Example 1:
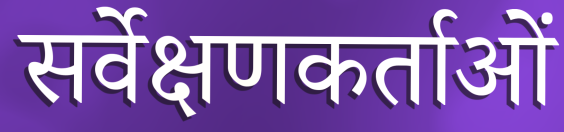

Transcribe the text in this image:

सर्वेक्षणकर्ताओं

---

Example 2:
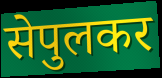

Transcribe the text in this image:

सेपुलकर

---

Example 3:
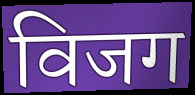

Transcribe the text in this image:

विजग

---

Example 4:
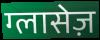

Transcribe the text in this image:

ग्लासेज़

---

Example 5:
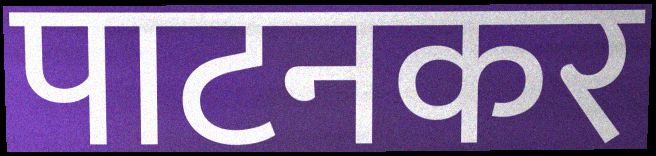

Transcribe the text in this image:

पाटनकर